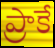
ప్రాకే